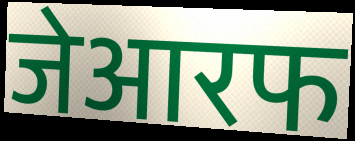
जेआरफ